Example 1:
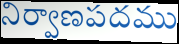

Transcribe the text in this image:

నిర్వాణపదము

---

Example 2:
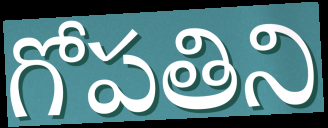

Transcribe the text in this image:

గోపతిని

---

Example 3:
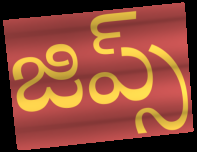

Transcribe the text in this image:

జిప్స్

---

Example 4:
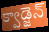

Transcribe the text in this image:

క్వాడ్జెన్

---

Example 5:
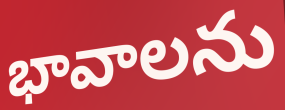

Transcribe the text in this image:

భావాలను